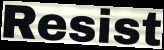
Resist